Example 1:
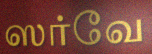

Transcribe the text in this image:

ஸர்வே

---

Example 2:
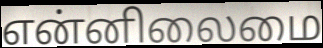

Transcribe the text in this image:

என்னிலைமை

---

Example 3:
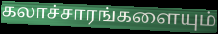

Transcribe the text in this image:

கலாச்சாரங்களையும்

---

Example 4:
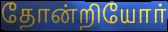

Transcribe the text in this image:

தோன்றியோர்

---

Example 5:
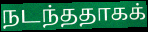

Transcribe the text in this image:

நடந்ததாகக்